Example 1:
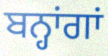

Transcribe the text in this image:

ਬਨ੍ਹ੍ਹ੍ਹਾਂਗਾਂ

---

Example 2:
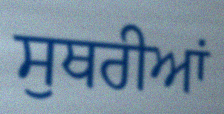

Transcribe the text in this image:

ਸੁਥਰੀਆਂ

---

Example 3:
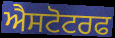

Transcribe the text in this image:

ਐਸਟੋਟਰਫ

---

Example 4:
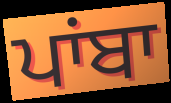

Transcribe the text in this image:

ਪਾਂਬਾ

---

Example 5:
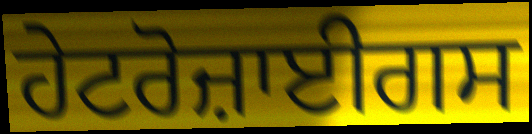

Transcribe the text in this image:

ਹੇਟਰੋਜ਼ਾਈਗਸ